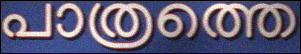
പാത്രത്തെ